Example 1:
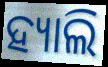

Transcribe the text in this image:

ହ୍ୟାଲି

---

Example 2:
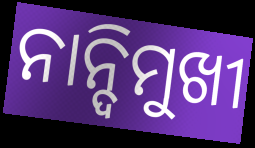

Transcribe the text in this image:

ନାନ୍ଦିମୁଖୀ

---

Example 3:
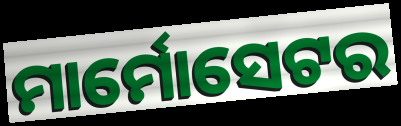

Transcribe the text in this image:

ମାର୍ମୋସେଟର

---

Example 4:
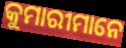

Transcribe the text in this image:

କୁମାରୀମାନେ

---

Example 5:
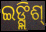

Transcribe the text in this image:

ଇଙ୍ଗ୍ଲିଶ୍